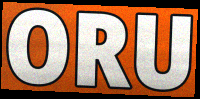
ORU